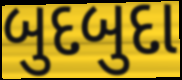
બુદબુદા